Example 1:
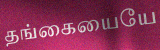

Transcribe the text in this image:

தங்கையையே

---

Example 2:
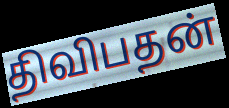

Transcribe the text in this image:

திவிபதன்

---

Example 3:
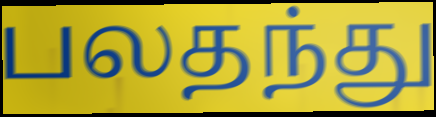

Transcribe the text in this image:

பலதந்து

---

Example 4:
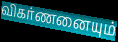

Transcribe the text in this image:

விகர்ணனையும்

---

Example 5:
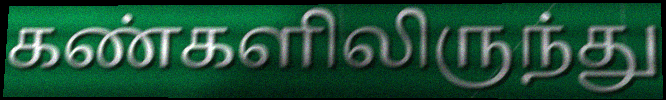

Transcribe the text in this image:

கண்களிலிருந்து